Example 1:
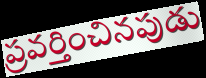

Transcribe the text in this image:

ప్రవర్తించినపుడు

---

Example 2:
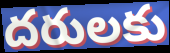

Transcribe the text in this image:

దరులకు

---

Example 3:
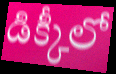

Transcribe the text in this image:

డిక్కీలో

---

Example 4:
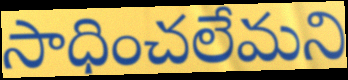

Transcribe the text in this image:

సాధించలేమని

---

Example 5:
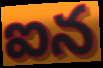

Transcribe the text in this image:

ఐన